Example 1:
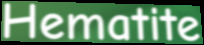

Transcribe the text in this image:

Hematite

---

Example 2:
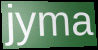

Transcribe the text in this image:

jyma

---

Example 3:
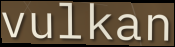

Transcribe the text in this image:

vulkan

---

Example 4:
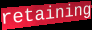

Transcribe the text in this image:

retaining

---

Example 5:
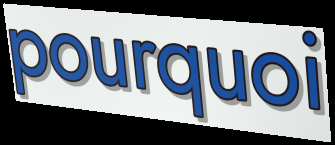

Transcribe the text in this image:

pourquoi